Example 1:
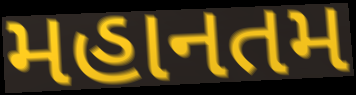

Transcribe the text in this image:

મહાનતમ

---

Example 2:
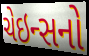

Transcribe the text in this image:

ચેઇન્સનો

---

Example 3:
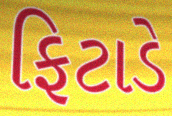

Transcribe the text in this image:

ફિટાડે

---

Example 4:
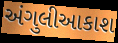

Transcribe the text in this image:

અંગુલીઆકાશ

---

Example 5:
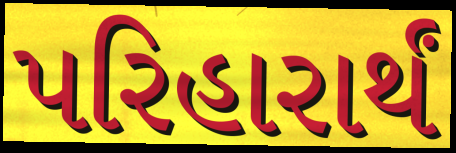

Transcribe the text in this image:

પરિહારાર્થં